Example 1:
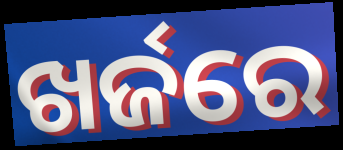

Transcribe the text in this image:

ଖର୍ଜରେ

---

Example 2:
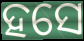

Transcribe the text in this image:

ହସେ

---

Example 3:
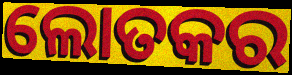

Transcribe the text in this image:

ଲୋତକର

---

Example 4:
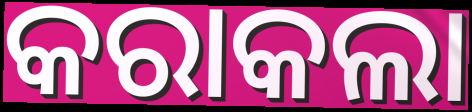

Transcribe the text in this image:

କରାକଲା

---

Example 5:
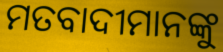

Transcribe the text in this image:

ମତବାଦୀମାନଙ୍କୁ